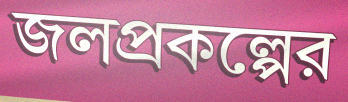
জলপ্রকল্পের